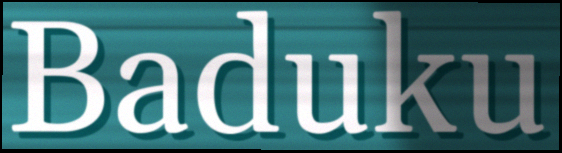
Baduku